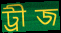
ট্রীজ